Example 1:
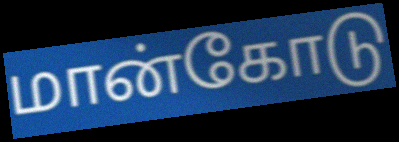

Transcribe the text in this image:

மான்கோடு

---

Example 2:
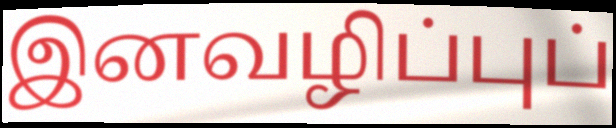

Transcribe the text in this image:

இனவழிப்புப்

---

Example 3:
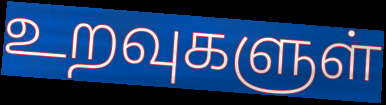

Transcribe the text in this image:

உறவுகளுள்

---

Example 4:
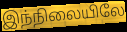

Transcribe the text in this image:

இந்நிலையிலே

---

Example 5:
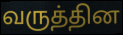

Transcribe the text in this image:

வருத்தின